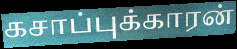
கசாப்புக்காரன்